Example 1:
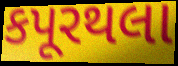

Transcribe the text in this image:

કપૂરથલા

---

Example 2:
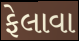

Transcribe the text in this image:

ફેલાવા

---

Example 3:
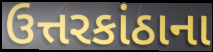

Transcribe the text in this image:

ઉત્તરકાંઠાના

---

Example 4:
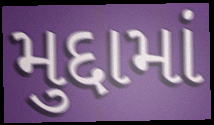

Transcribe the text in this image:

મુદ્દામાં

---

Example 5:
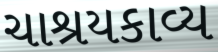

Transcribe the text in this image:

ચાશ્રયકાવ્ય